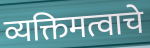
व्यक्तिमत्वाचे